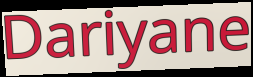
Dariyane